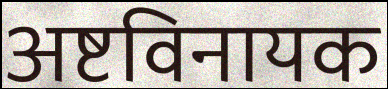
अष्टविनायक